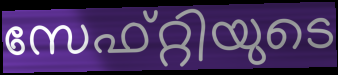
സേഫ്റ്റിയുടെ